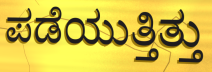
ಪಡೆಯುತ್ತಿತ್ತು